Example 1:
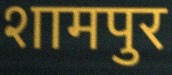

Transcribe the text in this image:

शामपुर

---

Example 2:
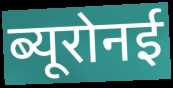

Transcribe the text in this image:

ब्यूरोनई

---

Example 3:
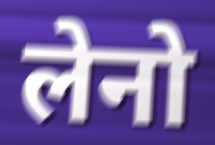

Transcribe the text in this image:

लेनो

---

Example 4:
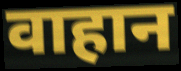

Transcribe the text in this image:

वाहान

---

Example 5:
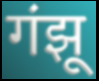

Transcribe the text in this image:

गंझू